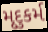
મૃદુકર્મ